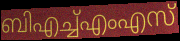
ബിഎച്ച്എംഎസ്